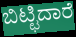
ಬಿಟ್ಟಿದಾರೆ